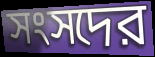
সংসদের